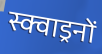
स्क्वाड्रनों